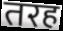
तरह